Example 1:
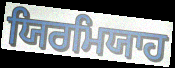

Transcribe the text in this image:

ਯਿਰਮਿਯਾਹ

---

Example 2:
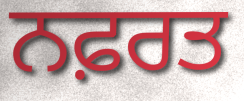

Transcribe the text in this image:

ਨਫ਼ਰਤ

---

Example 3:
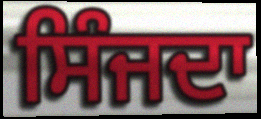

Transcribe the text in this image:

ਸਿੰਜਦਾ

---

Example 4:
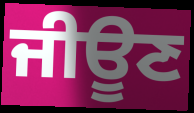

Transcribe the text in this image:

ਜੀਊਣ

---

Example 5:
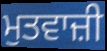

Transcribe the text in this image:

ਮੁਤਵਾਜ਼ੀ